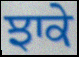
ਝਾਕੇ